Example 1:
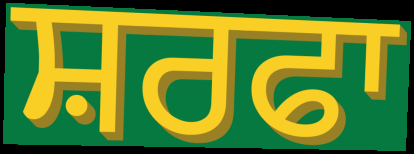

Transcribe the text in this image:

ਸ਼ਰਫਾ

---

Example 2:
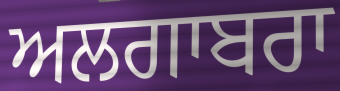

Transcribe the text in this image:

ਅਲਗਾਬਰਾ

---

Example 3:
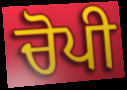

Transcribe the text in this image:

ਚੋਪੀ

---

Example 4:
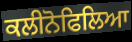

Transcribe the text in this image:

ਕਲੀਨੋਫਿਲਿਆ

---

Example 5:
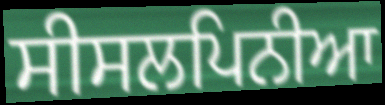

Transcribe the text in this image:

ਸੀਸਲਪਿਨੀਆ